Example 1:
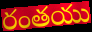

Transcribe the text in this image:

రంతయు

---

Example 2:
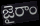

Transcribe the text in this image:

జైరాం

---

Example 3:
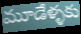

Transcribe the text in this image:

మూడేళ్ళకు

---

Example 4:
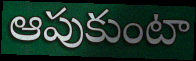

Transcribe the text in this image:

ఆపుకుంటా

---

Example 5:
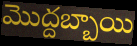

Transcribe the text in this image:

మొద్దబ్బాయి